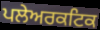
ਪਲੇਅਰਕਟਿਕ